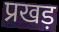
प्रखड़